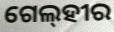
ଗେଲ୍‌ହୀର